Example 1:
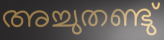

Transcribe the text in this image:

അച്ചുതണ്ടു്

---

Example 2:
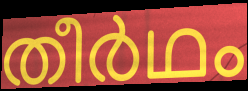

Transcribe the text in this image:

തീർഥം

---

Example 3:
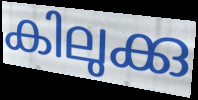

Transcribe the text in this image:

കിലുക്കു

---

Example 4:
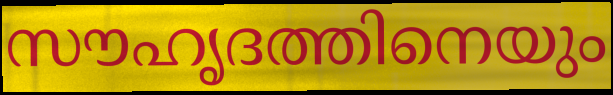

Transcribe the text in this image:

സൗഹൃദത്തിനെയും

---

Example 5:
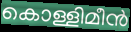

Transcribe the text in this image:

കൊള്ളിമീൻ